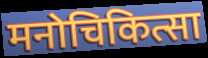
मनोचिकित्सा